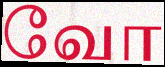
வோ